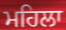
ਮਹਿਲਾ